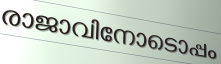
രാജാവിനോടൊപ്പം